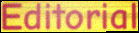
Editorial